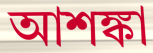
আশঙ্কা